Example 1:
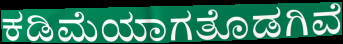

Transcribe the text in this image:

ಕಡಿಮೆಯಾಗತೊಡಗಿವೆ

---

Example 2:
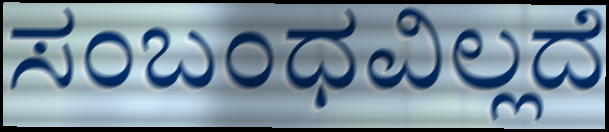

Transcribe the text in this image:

ಸಂಬಂಧವಿಲ್ಲದೆ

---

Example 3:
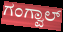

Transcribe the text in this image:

ಗಂಗ್ವಾಲ್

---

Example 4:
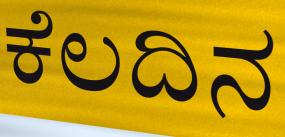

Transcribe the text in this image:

ಕೆಲದಿನ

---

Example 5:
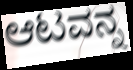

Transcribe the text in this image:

ಆಟವನ್ನ